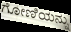
ಗೋಣಿಯನ್ನು